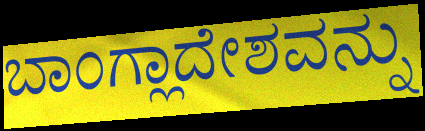
ಬಾಂಗ್ಲಾದೇಶವನ್ನು